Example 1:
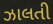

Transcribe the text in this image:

ઝાલતી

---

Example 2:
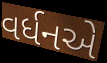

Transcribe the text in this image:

વર્ધનએ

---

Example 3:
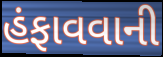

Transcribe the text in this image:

હંફાવવાની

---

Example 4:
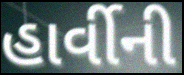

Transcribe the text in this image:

હાર્વીની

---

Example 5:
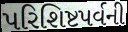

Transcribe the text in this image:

પરિશિષ્ટપર્વની